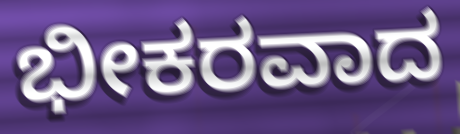
ಭೀಕರವಾದ